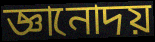
জ্ঞানোদয়